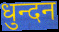
धुन्दन